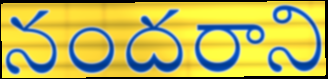
నందరాని